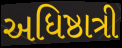
અધિષ્ઠાત્રી